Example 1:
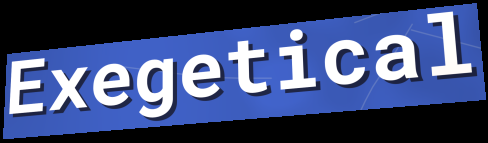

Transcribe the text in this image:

Exegetical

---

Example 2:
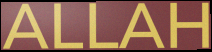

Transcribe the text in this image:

ALLAH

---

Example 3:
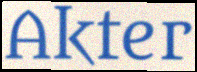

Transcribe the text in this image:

Akter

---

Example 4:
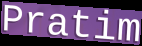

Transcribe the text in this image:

Pratim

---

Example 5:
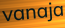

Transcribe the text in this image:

vanaja